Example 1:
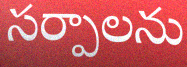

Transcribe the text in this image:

సర్పాలను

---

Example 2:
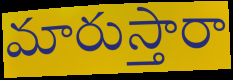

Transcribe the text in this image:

మారుస్తారా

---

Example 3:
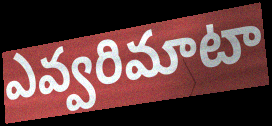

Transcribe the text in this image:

ఎవ్వరిమాటా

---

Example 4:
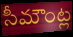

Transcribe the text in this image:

సీమౌంట్ల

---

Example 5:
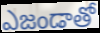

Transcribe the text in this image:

ఎజండాతో